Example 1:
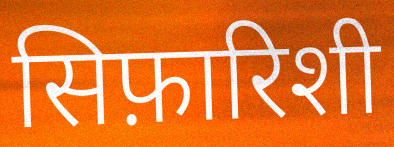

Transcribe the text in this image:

सिफ़ारिशी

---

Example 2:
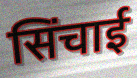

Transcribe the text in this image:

सिंचाई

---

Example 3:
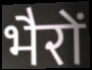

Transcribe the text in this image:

भैरों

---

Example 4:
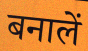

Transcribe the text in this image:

बनालें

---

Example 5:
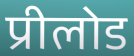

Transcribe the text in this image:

प्रीलोड